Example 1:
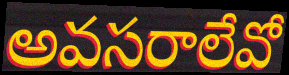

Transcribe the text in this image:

అవసరాలేవో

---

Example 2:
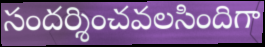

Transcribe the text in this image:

సందర్శించవలసిందిగా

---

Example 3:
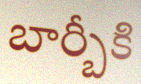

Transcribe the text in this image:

బార్బీకి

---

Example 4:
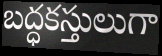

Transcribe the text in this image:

బద్ధకస్తులుగా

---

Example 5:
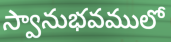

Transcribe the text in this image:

స్వానుభవములో